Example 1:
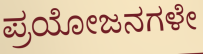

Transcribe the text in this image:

ಪ್ರಯೋಜನಗಳೇ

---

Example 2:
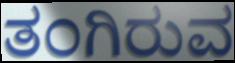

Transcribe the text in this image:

ತಂಗಿರುವ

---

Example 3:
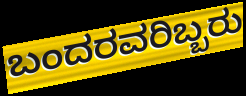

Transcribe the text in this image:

ಬಂದರವರಿಬ್ಬರು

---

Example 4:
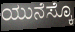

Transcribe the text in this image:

ಯುನೆಸ್ಕೊ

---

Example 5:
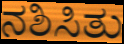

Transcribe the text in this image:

ನಶಿಸಿತು